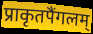
प्राकृतपैंगलम्